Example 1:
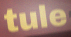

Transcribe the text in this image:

tule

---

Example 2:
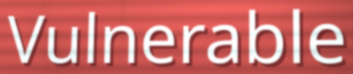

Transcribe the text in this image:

Vulnerable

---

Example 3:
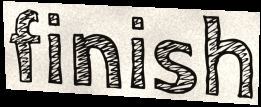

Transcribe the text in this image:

finish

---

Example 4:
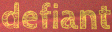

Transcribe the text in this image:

defiant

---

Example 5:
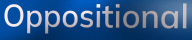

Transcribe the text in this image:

Oppositional